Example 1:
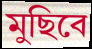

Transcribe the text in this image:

মুছিবে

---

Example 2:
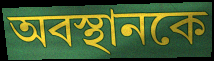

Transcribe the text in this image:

অবস্থানকে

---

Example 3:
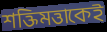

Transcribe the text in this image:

শক্তিমত্তাকেই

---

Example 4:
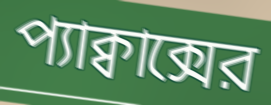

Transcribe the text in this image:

প্যাক্বাক্সের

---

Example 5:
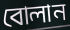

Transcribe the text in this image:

বোলান